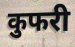
कुफरी